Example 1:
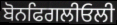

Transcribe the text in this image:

ਬੋਨਫਿਗਲੀਓਲੀ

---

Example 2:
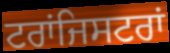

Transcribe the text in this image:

ਟਰਾਂਜਿਸਟਰਾਂ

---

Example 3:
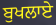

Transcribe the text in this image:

ਬੁਖਲਾਏ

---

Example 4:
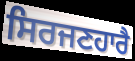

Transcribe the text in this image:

ਸਿਰਜਣਹਾਰੈ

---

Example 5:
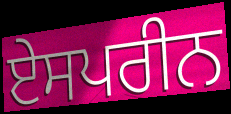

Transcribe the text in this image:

ਏਸਪਰੀਨ